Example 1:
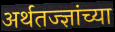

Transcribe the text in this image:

अर्थतज्ज्ञांच्या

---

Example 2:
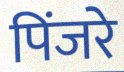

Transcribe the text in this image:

पिंजरे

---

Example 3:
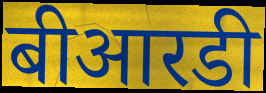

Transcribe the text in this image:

बीआरडी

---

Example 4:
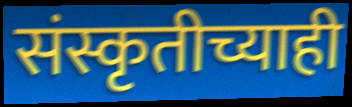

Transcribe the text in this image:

संस्कृतीच्याही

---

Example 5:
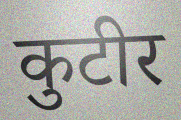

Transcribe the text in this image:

कुटीर